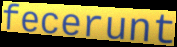
fecerunt